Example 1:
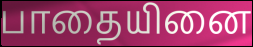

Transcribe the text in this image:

பாதையினை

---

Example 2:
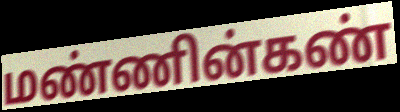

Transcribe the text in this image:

மண்ணின்கண்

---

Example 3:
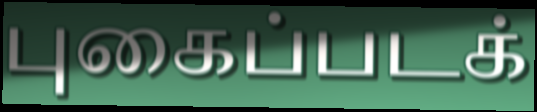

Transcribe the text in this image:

புகைப்படக்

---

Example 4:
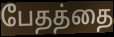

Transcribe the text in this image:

பேதத்தை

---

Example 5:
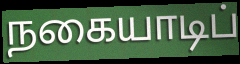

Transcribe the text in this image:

நகையாடிப்